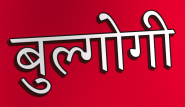
बुल्गोगी